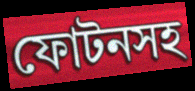
ফোটনসহ